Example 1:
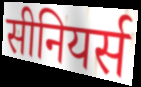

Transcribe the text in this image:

सीनियर्स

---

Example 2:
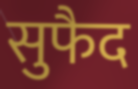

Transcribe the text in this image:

सुफैद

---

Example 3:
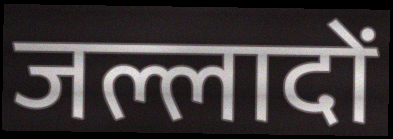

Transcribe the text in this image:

जल्लादों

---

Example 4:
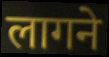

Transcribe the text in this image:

लागने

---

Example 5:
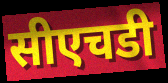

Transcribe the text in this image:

सीएचडी